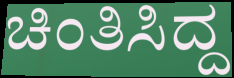
ಚಿಂತಿಸಿದ್ದ